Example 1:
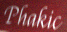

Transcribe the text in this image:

Phakic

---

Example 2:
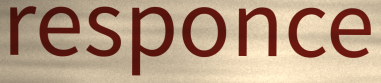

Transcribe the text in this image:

responce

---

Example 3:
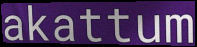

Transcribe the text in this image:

akattum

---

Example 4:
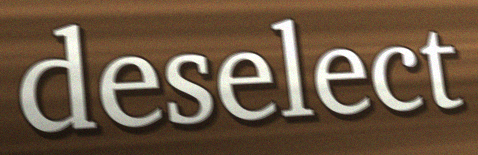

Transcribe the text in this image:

deselect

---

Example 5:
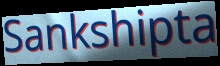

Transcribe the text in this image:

Sankshipta